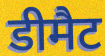
डीमैट